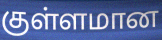
குள்ளமான